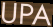
UPA